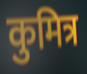
कुमित्र